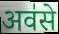
अव॑से